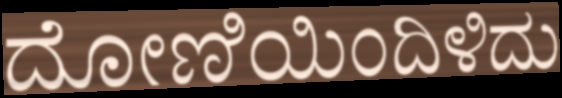
ದೋಣಿಯಿಂದಿಳಿದು